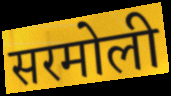
सरमोली